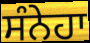
ਸੰਨੇਹਾ